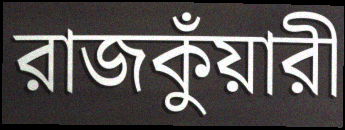
রাজকুঁয়ারী